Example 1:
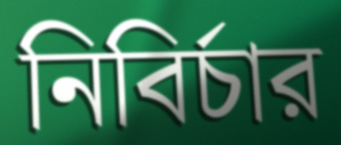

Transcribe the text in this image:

নিবির্চার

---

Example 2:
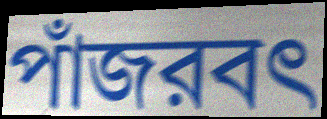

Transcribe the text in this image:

পাঁজরবৎ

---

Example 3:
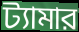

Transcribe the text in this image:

ট্যামার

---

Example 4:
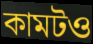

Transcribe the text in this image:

কামটও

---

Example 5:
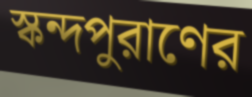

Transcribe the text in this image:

স্কন্দপুরাণের